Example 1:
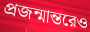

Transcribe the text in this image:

প্রজন্মান্তরেও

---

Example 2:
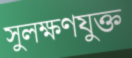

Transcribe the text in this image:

সুলক্ষণযুক্ত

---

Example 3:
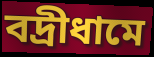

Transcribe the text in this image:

বদ্রীধামে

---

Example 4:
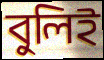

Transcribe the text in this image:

বুলিই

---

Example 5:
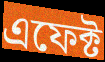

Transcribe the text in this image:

এফেক্ট